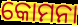
କୋମନା